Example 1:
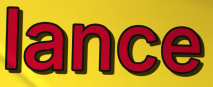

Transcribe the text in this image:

lance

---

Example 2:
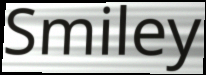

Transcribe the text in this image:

Smiley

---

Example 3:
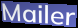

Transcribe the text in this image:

Mailer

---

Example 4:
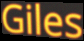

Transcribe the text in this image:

Giles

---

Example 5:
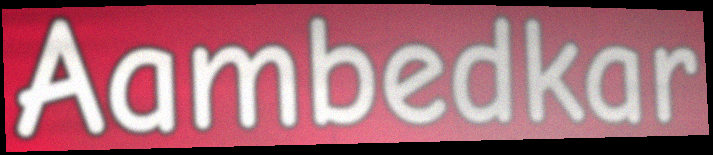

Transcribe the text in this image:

Aambedkar